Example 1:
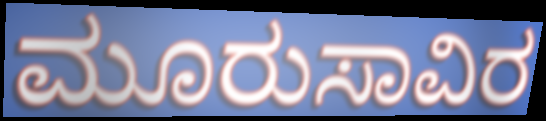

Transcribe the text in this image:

ಮೂರುಸಾವಿರ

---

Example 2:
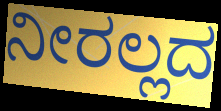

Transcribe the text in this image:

ನೀರಲ್ಲದ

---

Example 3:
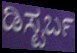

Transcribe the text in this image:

ಡಿಸ್ಟರ್ಬ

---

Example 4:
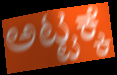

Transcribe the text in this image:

ಅಟ್ಟಕ್ಕೆ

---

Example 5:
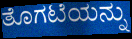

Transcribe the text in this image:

ತೊಗಟೆಯನ್ನು